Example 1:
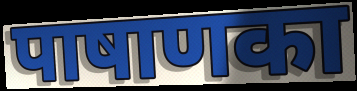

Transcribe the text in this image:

पाषाणका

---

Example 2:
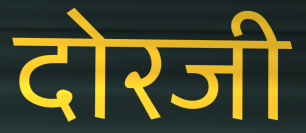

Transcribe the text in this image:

दोरजी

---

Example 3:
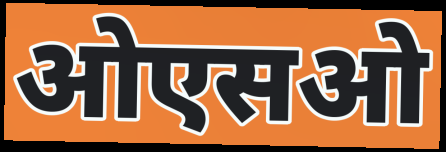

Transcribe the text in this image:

ओएसओ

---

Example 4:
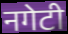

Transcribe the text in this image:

नगेटी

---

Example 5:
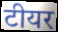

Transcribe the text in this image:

टीयर